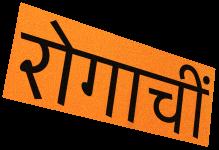
रोगाचीं